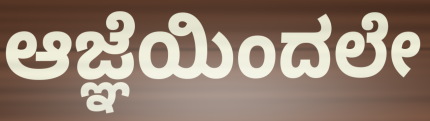
ಆಜ್ಞೆಯಿಂದಲೇ